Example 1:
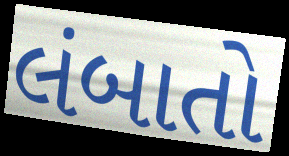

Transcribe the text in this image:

લંબાતો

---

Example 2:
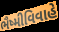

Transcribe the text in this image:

ભૈષ્મીવિવાહે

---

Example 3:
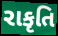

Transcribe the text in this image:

રાકૃતિ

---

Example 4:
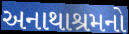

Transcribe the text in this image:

અનાથાશ્રમનો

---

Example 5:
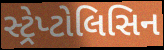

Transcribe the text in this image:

સ્ટ્રેપ્ટોલિસિન